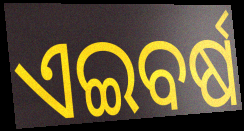
ଏଇବର୍ଷ